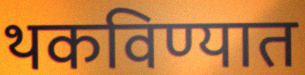
थकविण्यात